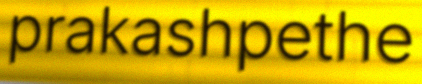
prakashpethe